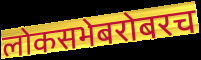
लोकसभेबरोबरच